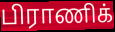
பிராணிக்